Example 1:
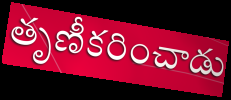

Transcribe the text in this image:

తృణీకరించాడు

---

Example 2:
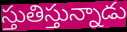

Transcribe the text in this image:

స్తుతిస్తున్నాడు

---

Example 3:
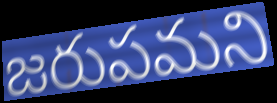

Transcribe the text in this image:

జరుపమని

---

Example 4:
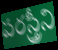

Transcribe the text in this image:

పరస్త్రీని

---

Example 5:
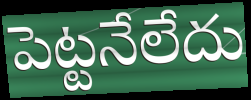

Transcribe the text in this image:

పెట్టనేలేదు